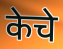
केचे